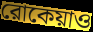
রোকেয়াও